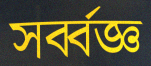
সৰ্ব্বজ্ঞ